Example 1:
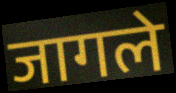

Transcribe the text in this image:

जागले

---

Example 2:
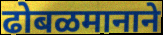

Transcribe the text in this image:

ढोबळमानाने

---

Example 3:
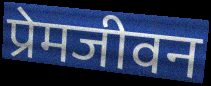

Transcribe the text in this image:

प्रेमजीवन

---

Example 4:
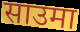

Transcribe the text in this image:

साउमा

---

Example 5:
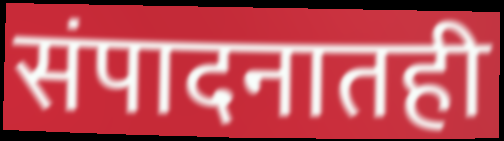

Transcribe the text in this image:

संपादनातही